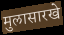
मुलासारखे